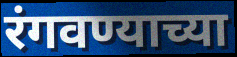
रंगवण्याच्या